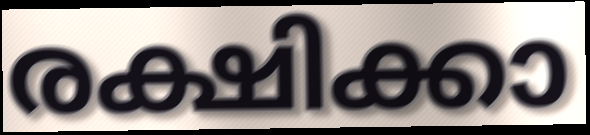
രക്ഷിക്കാ